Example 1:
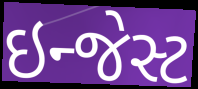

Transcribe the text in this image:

ઇન્જેસ્ટ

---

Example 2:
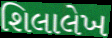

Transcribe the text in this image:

શિલાલેખ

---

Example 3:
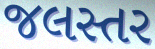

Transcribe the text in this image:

જલસ્તર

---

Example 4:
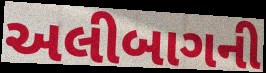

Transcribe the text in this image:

અલીબાગની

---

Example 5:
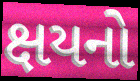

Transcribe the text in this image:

ક્ષયનો